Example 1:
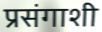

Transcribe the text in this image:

प्रसंगाशी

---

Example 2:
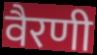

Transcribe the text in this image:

वैरणी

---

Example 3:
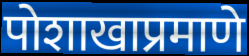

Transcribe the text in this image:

पोशाखाप्रमाणे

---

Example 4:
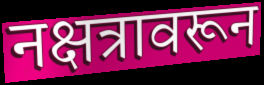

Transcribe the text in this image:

नक्षत्रावरून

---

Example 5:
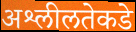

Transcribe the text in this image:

अश्लीलतेकडे